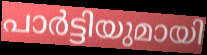
പാർട്ടിയുമായി